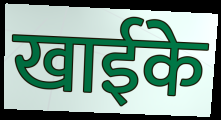
खाईके